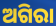
ଅଗିରା